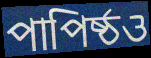
পাপিষ্ঠও